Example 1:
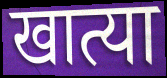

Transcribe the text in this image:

खात्या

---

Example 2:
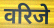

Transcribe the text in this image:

वरिजे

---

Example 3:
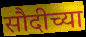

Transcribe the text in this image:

सौदीच्या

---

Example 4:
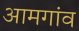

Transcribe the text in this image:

आमगांव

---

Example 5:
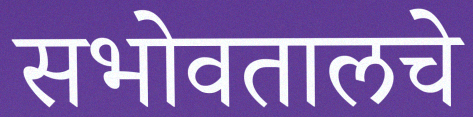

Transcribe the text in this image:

सभोवतालचे